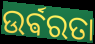
ଉର୍ଵରତା